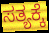
ಸತ್ಯಕ್ಕೆ